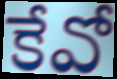
కేవో